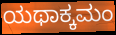
ಯಥಾಕ್ಕಮಂ